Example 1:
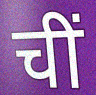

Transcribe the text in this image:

चीं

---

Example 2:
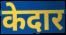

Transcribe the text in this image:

केदार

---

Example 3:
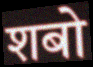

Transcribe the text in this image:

शबो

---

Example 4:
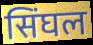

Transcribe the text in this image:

सिंघल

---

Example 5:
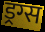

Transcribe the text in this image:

ड्रग्‍स